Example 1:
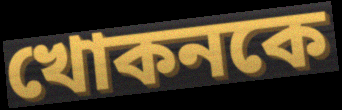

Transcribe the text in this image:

খোকনকে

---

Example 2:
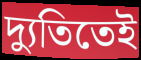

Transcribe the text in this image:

দ্যুতিতেই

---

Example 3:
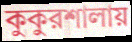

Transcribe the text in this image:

কুকুরশালায়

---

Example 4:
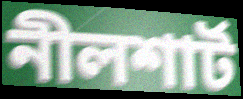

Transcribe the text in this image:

নীলশার্ট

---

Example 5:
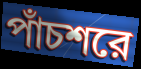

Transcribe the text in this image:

পাঁচশরে